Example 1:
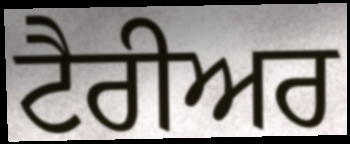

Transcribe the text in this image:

ਟੈਰੀਅਰ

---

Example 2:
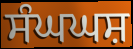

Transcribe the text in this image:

ਸੰਘਘਸ਼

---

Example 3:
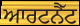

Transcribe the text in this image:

ਆਰਟਨੈੱਟ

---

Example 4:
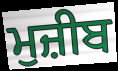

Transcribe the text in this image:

ਮੁਜ਼ੀਬ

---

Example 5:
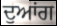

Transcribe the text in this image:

ਦੁਆਂਗ